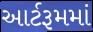
આર્ટરૂમમાં